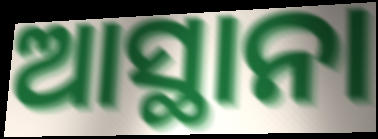
ଆସ୍ଥାନା